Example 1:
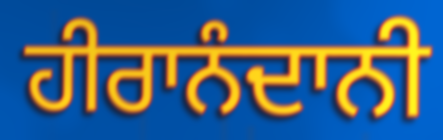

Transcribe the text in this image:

ਹੀਰਾਨੰਦਾਨੀ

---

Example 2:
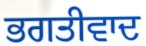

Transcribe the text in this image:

ਭਗਤੀਵਾਦ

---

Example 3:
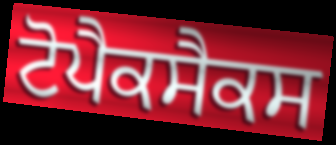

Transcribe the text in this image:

ਟੋਪੈਕਸੈਕਸ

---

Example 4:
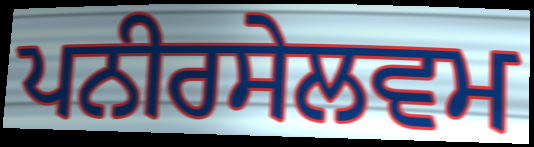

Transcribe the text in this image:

ਪਨੀਰਸੇਲਵਮ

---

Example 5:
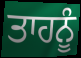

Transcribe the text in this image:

ਤਾਹਨੂੰ